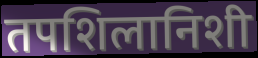
तपशिलानिशी